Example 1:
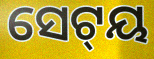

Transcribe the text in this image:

ସେଟ୍‌ୟ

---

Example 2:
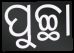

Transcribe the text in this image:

ପୁଚ୍ଛା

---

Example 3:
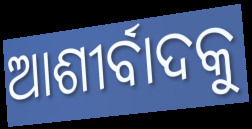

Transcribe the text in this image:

ଆଶୀର୍ବାଦକୁ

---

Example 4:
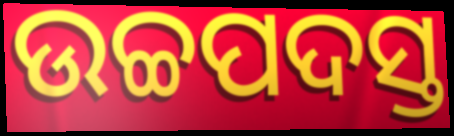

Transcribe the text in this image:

ଉଚ୍ଚପଦସ୍ତ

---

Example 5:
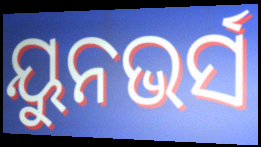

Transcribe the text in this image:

ୟୁନଭର୍ସ